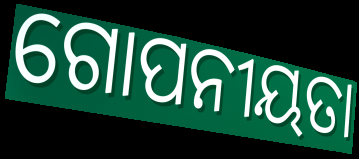
ଗୋପନୀୟତା